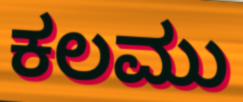
ಕಲಮು